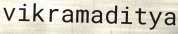
vikramaditya